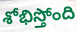
శోభిస్తోంది